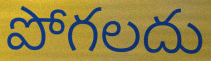
పోగలదు